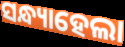
ସନ୍ଧ୍ୟାହେଲା